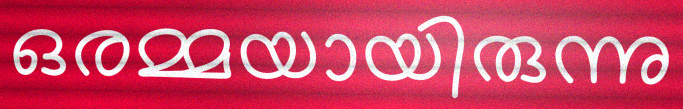
ഒരമ്മയായിരുന്നു